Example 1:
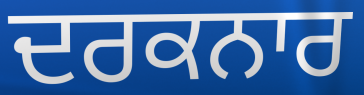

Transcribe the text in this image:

ਦਰਕਨਾਰ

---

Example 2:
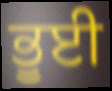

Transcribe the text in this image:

ਭੂਈ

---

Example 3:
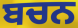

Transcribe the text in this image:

ਬਚਨ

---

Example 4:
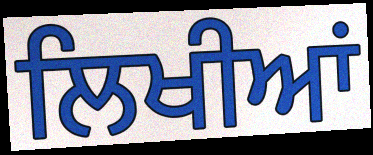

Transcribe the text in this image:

ਲਿਖੀਆਂ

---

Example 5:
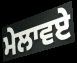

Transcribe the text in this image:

ਮੇਲਾਵਏ